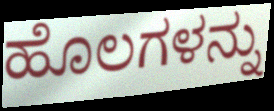
ಹೊಲಗಳನ್ನು